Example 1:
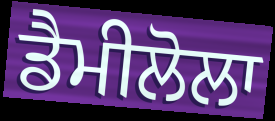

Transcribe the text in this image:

ਡੈਮੀਲੋਲਾ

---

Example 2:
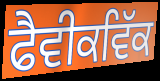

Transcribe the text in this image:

ਫੈਵੀਕਵਿੱਕ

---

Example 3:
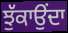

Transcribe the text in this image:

ਝੁੱਕਾਉਂਦਾ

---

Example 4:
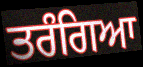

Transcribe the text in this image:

ਤਰੰਗਿਆ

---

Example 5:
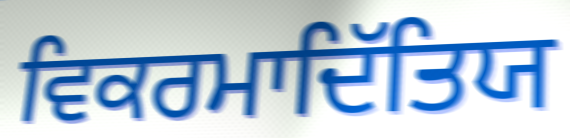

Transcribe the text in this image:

ਵਿਕਰਮਾਦਿੱਤਿਯ